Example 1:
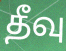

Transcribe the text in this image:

தீவு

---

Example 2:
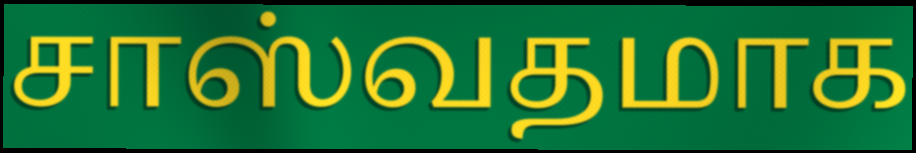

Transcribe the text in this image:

சாஸ்வதமாக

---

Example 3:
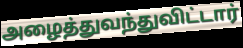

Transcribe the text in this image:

அழைத்துவந்துவிட்டார்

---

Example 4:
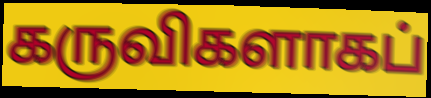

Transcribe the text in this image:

கருவிகளாகப்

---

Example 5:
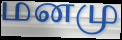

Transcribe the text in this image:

மனமு